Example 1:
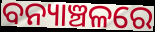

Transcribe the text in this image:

ବନ୍ୟାଞ୍ଚଳରେ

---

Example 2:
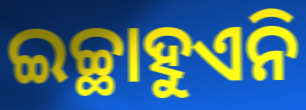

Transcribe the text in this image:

ଇଚ୍ଛାହୁଏନି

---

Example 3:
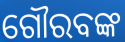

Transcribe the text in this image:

ଗୌରବଙ୍କ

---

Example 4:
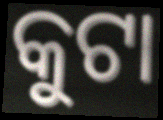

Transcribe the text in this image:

କୁଟା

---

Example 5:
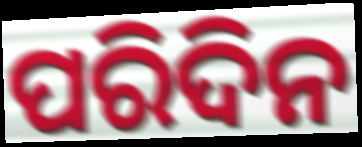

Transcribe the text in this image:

ପରିଦିନ